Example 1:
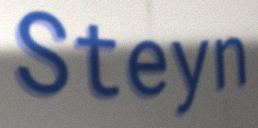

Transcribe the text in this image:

Steyn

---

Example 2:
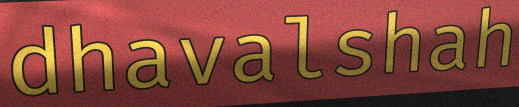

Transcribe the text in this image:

dhavalshah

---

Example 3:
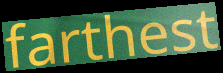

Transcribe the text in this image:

farthest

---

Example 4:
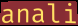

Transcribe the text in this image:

anali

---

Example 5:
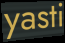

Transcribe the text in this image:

yasti